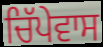
ਚਿੱਪੇਵਾਸ